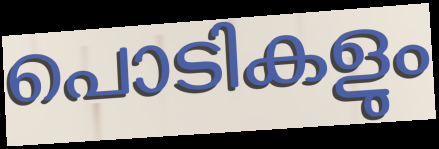
പൊടികളും